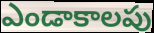
ఎండాకాలపు